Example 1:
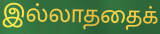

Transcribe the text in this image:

இல்லாததைக்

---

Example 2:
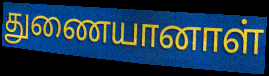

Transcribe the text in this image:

துணையானாள்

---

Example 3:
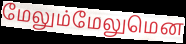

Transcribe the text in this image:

மேலும்மேலுமென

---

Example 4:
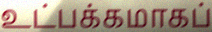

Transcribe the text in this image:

உட்பக்கமாகப்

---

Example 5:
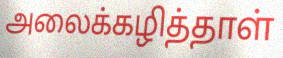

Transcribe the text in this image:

அலைக்கழித்தாள்